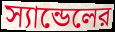
স্যান্ডেলের